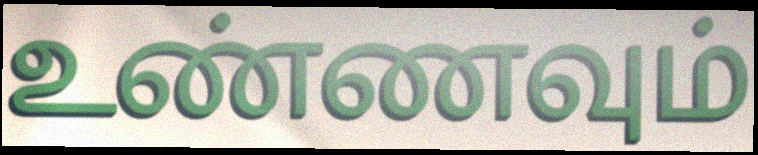
உண்ணவும்